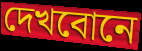
দেখবোনে